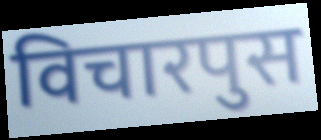
विचारपुस